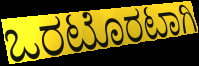
ಒರಟೊರಟಾಗಿ